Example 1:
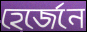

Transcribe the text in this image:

হেৰ্জেনে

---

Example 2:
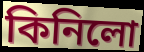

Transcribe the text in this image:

কিনিলো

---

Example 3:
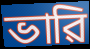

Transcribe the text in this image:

ভাৱি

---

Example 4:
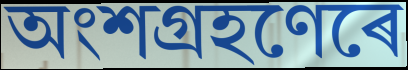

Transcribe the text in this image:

অংশগ্ৰহণেৰে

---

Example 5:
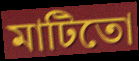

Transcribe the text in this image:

মাটিতো